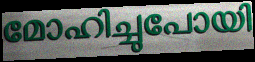
മോഹിച്ചുപോയി